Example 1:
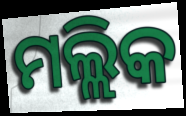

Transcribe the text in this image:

ମଲ୍ଲିକ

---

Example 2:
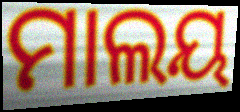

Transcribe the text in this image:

ମାଲୟ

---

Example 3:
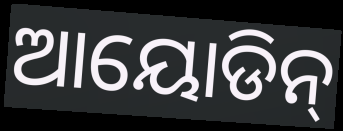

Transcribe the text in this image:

ଆୟୋଡିନ୍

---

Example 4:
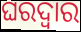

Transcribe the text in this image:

ଘରଦ୍ବାର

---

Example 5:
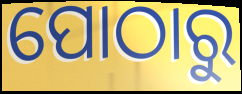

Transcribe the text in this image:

ପୋଠାରୁ